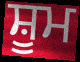
ਸ਼ੂਮ